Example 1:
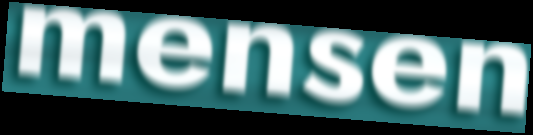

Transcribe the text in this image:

mensen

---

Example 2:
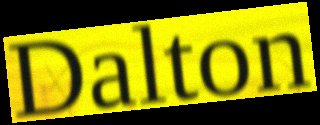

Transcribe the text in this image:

Dalton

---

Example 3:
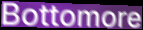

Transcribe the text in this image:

Bottomore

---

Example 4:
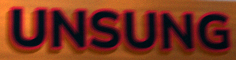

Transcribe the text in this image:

UNSUNG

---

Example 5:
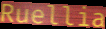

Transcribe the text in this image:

Ruellia